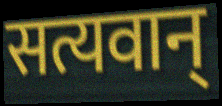
सत्यवान्